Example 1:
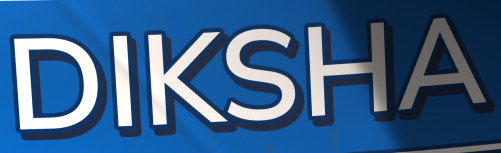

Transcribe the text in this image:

DIKSHA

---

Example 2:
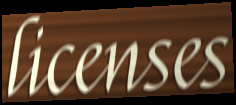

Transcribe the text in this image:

licenses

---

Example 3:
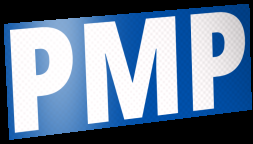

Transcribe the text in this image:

PMP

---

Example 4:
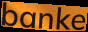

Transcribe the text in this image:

banke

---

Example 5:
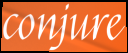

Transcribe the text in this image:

conjure